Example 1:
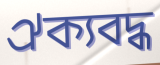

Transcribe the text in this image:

ঐক্যবদ্ধ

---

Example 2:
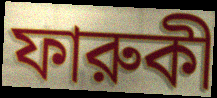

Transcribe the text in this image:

ফারুকী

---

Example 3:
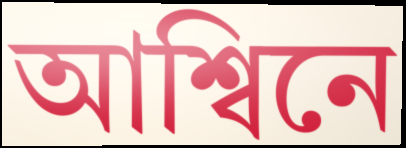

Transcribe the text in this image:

আশ্বিনে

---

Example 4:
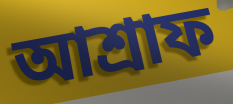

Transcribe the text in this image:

আশ্রাফ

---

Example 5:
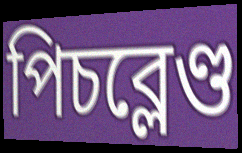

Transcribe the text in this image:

পিচব্লেণ্ড